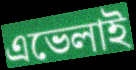
এভেলাই